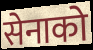
सेनाको